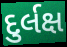
દુર્લક્ષ